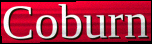
Coburn